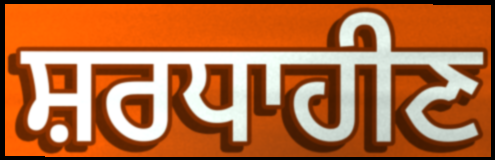
ਸ਼ਰਧਾਹੀਣ